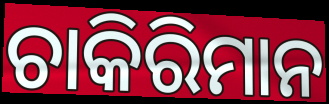
ଚାକିରିମାନ